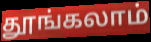
தூங்கலாம்